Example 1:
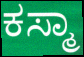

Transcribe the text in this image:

ಕಸ್ಮಾ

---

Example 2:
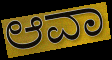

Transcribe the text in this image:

ಆವಾ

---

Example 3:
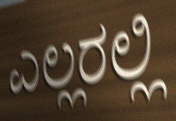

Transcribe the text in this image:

ಎಲ್ಲರಲ್ಲಿ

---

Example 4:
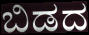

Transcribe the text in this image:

ಬಿಡದ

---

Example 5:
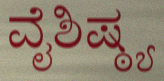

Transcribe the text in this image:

ವೈಶಿಷ್ಠ್ಯ